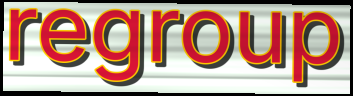
regroup